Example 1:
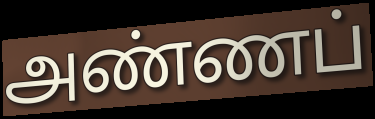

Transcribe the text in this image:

அண்ணப்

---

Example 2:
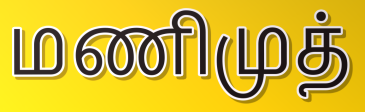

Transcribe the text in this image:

மணிமுத்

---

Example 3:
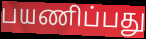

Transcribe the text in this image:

பயணிப்பது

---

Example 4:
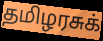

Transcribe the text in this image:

தமிழரசுக்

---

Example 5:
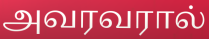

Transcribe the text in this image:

அவரவரால்